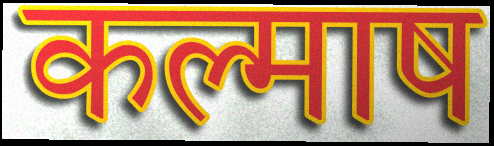
कल्माष